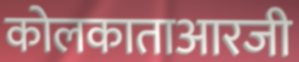
कोलकाताआरजी